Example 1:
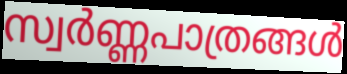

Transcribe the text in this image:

സ്വർണ്ണപാത്രങ്ങൾ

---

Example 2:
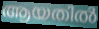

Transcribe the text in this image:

ആയതിൽ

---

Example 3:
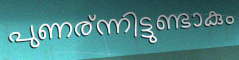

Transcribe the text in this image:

പുണര്ന്നിട്ടുണ്ടാകും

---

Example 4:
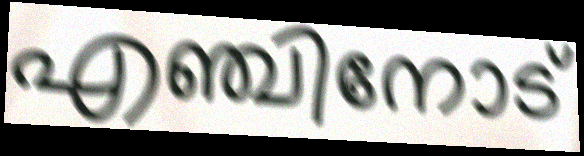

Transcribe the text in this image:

എഞ്ചിനോട്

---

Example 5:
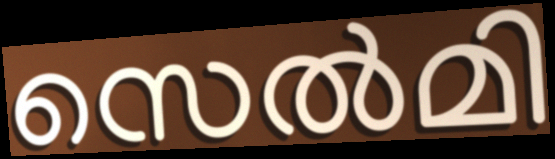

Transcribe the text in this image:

സെൽമി